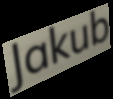
Jakub